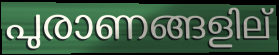
പുരാണങ്ങളില്